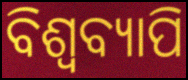
ବିଶ୍ବବ୍ୟାପି